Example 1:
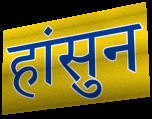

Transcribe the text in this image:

हांसुन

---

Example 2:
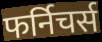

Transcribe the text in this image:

फर्निचर्स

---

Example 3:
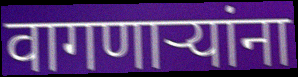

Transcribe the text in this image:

वागणार्‍यांना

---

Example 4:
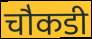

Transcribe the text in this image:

चौकडी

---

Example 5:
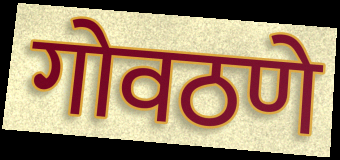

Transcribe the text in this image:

गोवठणे